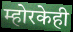
म्होरकेही